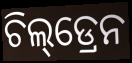
ଚିଲ୍‌ଡ୍ରେନ